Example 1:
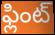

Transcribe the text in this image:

ఫ్లింట్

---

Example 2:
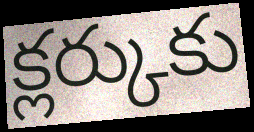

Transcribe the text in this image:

క్లర్కుకు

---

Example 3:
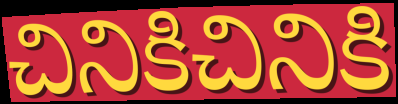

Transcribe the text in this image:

చినికిచినికి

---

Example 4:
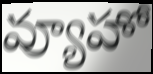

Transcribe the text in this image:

వ్యూహో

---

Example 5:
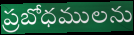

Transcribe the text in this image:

ప్రబోధములను